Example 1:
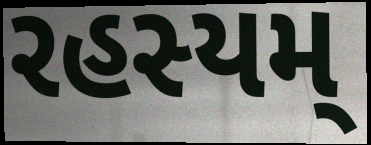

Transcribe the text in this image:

રહસ્યમ્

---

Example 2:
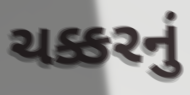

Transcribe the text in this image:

ચક્કરનું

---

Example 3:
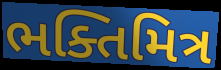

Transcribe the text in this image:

ભક્તિમિત્ર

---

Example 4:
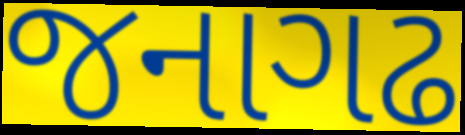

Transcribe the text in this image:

જનાગઢ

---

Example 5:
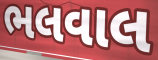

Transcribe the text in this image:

ભલવાલ